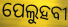
ପେଲୁହବୀ